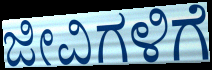
ಜೀವಿಗಳಿಗೆ